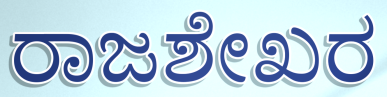
ರಾಜಶೇಖರ